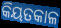
କିୟତକାଳ